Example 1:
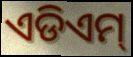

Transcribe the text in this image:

ଏଡିଏମ୍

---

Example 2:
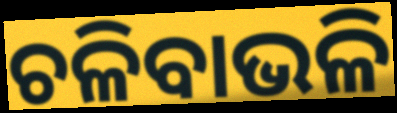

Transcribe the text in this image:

ଚଳିବାଭଳି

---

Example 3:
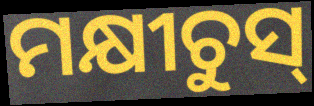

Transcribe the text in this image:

ମକ୍ଷୀଚୁସ୍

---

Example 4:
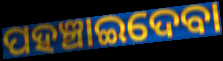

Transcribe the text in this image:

ପହଞ୍ଚାଇଦେବା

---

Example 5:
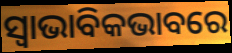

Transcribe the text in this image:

ସ୍ୱାଭାବିକଭାବରେ